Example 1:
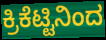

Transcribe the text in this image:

ಕ್ರಿಕೆಟ್ಟಿನಿಂದ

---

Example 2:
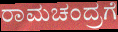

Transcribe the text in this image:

ರಾಮಚಂದ್ರಗೆ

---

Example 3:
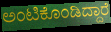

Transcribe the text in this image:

ಅಂಟಿಕೊಂಡಿದ್ದಾರೆ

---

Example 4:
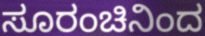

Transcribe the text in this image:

ಸೂರಂಚಿನಿಂದ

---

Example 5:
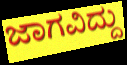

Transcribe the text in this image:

ಜಾಗವಿದ್ದು